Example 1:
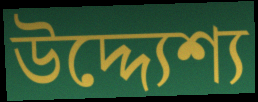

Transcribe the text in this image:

উদ্দ্যেশ্য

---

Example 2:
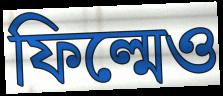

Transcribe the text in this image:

ফিল্মেও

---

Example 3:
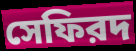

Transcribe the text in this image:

সেফিরদ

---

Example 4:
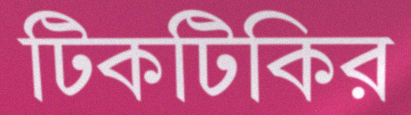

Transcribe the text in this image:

টিকটিকির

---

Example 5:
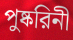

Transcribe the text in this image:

পুষ্করিনী